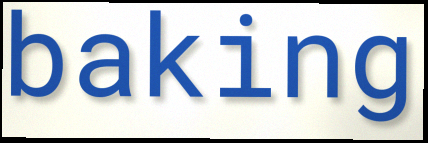
baking